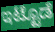
ಇಟ್ಟೊಡೆ